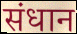
संधान